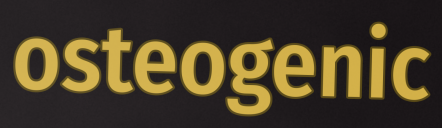
osteogenic